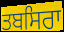
ਤਬਸਿਰਾ